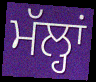
ਮੱਲ੍ਹਾਂ